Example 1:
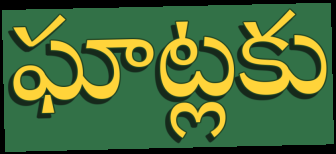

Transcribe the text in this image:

ఘాట్లకు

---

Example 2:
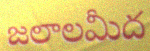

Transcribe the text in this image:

జలాలమీద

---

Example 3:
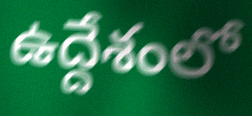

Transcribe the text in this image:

ఉద్దేశంలో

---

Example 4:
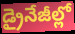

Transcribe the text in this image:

డ్రైనేజీల్లో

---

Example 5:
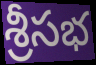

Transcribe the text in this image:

శ్రీసభ